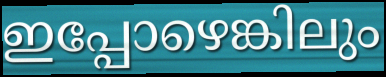
ഇപ്പോഴെങ്കിലും